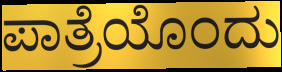
ಪಾತ್ರೆಯೊಂದು